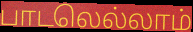
பாடலெல்லாம்